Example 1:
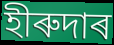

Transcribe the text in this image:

হীৰুদাৰ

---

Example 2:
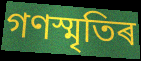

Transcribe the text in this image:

গণস্মৃতিৰ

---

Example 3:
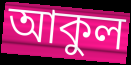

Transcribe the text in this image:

আকুল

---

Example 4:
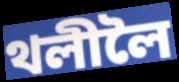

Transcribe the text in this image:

থলীলৈ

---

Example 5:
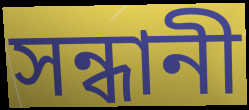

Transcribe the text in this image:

সন্ধানী